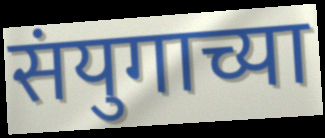
संयुगाच्या